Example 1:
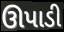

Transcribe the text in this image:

ઊપાડી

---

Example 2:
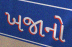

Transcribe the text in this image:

ખજાનો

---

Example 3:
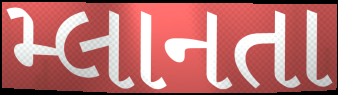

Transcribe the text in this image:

મ્લાનતા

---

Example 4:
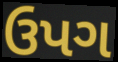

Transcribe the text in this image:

ઉપગ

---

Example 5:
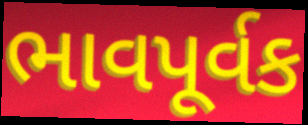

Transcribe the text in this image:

ભાવપૂર્વક